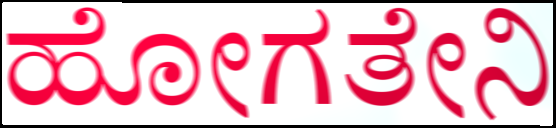
ಹೋಗತೇನಿ